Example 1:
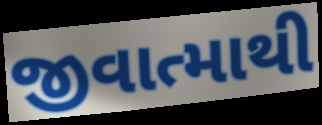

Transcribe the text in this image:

જીવાત્માથી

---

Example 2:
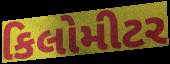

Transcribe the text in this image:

કિલોમીટર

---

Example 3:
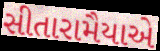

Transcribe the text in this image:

સીતારામૈયાએ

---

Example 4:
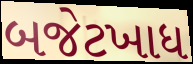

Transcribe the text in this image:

બજેટખાધ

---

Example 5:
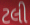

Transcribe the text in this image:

ટલી